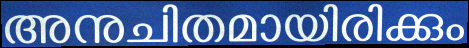
അനുചിതമായിരിക്കും